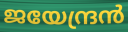
ജയേന്ദ്രൻ